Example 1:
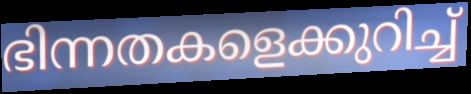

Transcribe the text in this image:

ഭിന്നതകളെക്കുറിച്ച്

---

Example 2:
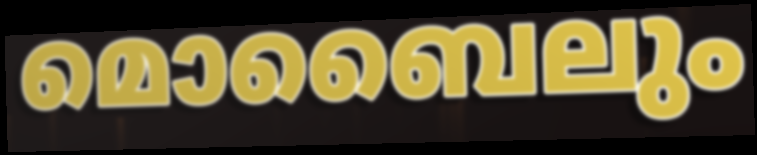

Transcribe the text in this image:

മൊബൈലും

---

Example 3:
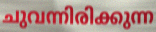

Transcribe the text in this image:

ചുവന്നിരിക്കുന്ന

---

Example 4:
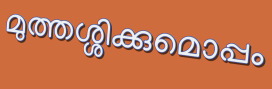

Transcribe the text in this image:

മുത്തശ്ശിക്കുമൊപ്പം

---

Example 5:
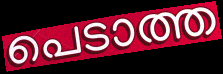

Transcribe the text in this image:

പെടാത്ത